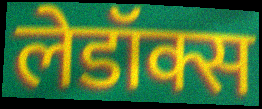
लेडॉक्स